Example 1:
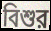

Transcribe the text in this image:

বিশুর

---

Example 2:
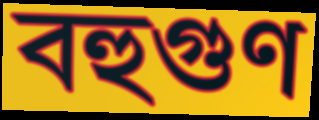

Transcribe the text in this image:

বহুগুণ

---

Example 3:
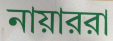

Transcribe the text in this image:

নায়াররা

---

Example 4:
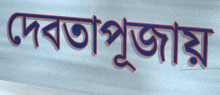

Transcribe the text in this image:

দেবতাপূজায়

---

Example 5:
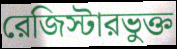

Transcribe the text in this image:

রেজিস্টারভুক্ত